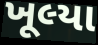
ખૂલ્યા